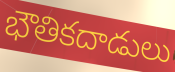
భౌతికదాడులు